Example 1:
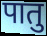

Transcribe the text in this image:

पातु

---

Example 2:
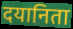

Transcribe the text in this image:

दयानिता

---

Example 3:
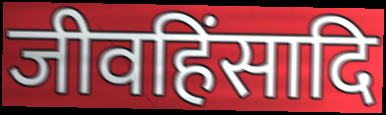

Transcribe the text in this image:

जीवहिंसादि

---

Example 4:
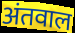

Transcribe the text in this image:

अंतवाल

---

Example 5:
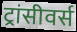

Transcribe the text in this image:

ट्रांसीवर्स